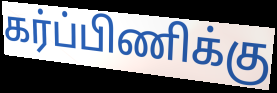
கர்ப்பிணிக்கு